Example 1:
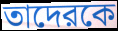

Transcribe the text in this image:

তাদেরকে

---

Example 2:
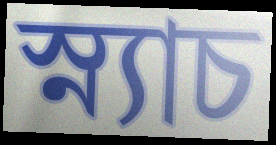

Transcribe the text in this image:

স্ন্যাচ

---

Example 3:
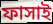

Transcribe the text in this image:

ফাসাই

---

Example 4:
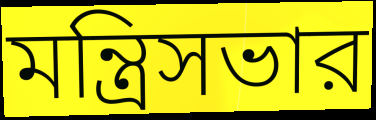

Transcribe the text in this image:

মন্ত্রিসভার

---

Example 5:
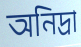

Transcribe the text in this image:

অনিদ্রা